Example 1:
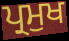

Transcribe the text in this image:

ਪ੍ਰਮੁਖ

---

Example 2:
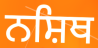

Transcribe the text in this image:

ਨਸ਼ਿਥ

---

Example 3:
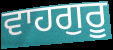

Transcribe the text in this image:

ਵਾਹਗੁਰੂ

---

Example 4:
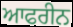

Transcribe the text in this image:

ਆਫਰੀਨ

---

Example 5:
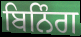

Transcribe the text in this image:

ਬਿਨਿੰਗ